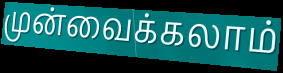
முன்வைக்கலாம்